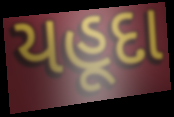
યહૂદા